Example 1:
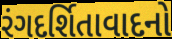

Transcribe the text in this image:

રંગદર્શિતાવાદનો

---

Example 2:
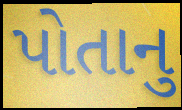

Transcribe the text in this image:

પોતાનુ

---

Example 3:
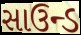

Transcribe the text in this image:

સાઉન્ડ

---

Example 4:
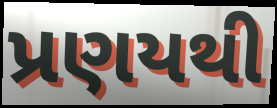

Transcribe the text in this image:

પ્રણયથી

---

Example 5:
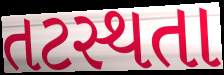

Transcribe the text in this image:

તટસ્થતા